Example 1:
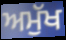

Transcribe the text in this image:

ਅਮੁੱਖ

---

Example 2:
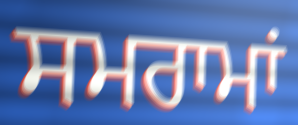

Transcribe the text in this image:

ਸਮਰਾਮਾਂ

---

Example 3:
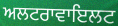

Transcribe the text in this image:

ਅਲਟਰਾਵਾਇਲਟ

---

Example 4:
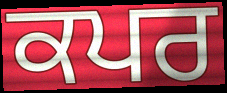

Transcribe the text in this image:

ਕਪਰ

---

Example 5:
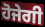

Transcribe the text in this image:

ਹੋਜੇਗੀ